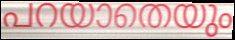
പറയാതെയും